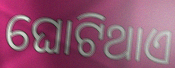
ଘୋଟିଥାଏ